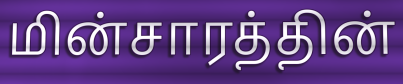
மின்சாரத்தின்